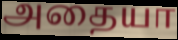
அதையா